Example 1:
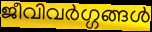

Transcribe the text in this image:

ജീവിവർഗ്ഗങ്ങൾ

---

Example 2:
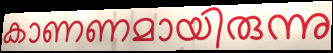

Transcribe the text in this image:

കാണണമായിരുന്നു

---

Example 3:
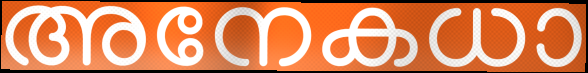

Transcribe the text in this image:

അനേകധാ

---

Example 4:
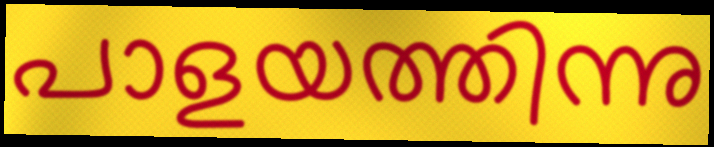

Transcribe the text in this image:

പാളയത്തിന്നു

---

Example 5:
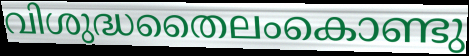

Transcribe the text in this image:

വിശുദ്ധതൈലംകൊണ്ടു